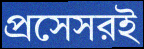
প্রসেসরই